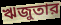
ঋজুতার